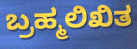
ಬ್ರಹ್ಮಲಿಖಿತ